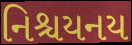
નિશ્ચયનય